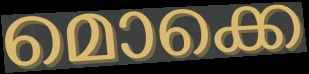
മൊക്കെ